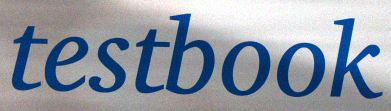
testbook